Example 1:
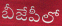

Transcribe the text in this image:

బీజేపీలో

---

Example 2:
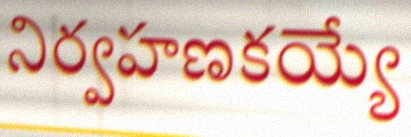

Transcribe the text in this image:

నిర్వహణకయ్యే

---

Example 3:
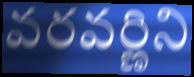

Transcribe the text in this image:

వరవర్ణిని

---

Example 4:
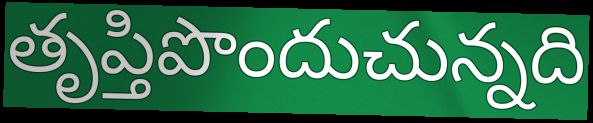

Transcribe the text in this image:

తృప్తిపొందుచున్నది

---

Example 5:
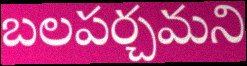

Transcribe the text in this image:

బలపర్చమని